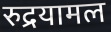
रुद्रयामल